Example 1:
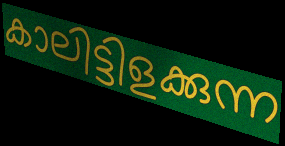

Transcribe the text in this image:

കാലിട്ടിളക്കുന്ന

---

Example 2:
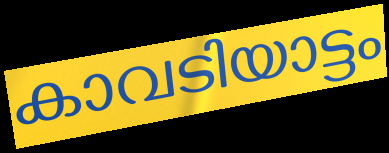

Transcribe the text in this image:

കാവടിയാട്ടം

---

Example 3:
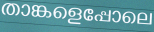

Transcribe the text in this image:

താങ്കളെപ്പോലെ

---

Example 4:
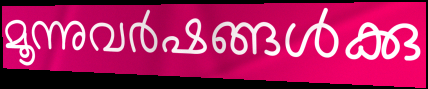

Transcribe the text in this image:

മൂന്നുവർഷങ്ങൾക്കു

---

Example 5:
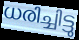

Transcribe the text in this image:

ധരിച്ചിട്ടു